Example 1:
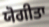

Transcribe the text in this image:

ਯੋਗੀਤਾ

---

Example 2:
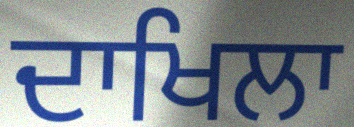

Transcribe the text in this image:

ਦਾਖਿਲਾ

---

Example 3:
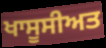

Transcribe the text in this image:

ਖਾਸੂਸੀਅਤ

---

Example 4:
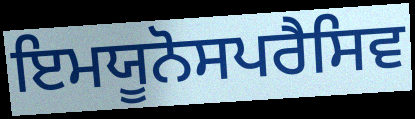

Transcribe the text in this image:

ਇਮਯੂਨੋਸਪਰੈਸਿਵ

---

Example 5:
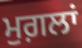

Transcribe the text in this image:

ਮੁਗ਼ਲਾਂ